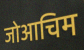
जोआचिम